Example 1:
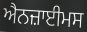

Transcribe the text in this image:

ਐਨਜ਼ਾਈਮਸ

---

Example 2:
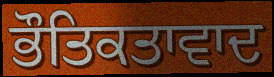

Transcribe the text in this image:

ਭੌਤਿਕਤਾਵਾਦ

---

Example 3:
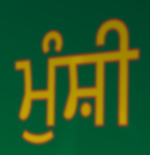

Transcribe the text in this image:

ਮੁੰਸ਼ੀ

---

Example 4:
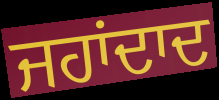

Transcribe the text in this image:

ਜਹਾਂਦਾਦ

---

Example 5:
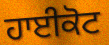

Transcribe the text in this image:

ਹਾਈਕੋਟ